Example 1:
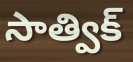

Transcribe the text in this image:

సాత్విక్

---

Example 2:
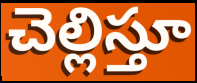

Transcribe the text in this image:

చెల్లిస్తూ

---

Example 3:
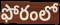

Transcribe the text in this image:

ఫోరంలో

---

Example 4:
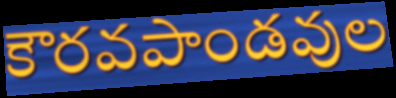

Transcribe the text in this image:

కౌరవపాండవుల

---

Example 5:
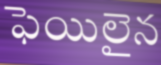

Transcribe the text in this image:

ఫెయిలైన